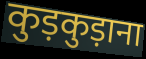
कुड़कुड़ाना